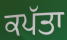
ਕਪੱਤਾ